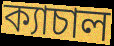
ক্যাচাল